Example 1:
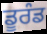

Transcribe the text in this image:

ਡੂਰੰਡ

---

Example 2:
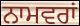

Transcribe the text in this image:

ਨਾਮਵਰਾਂ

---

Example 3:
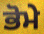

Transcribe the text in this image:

ਭੋਮੇ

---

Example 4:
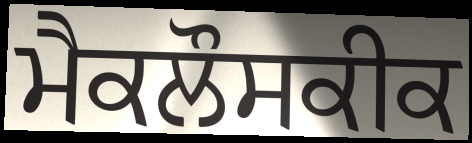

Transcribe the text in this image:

ਮੈਕਲੌਸਕੀਕ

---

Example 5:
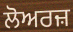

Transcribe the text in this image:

ਲੋਅਰਜ਼